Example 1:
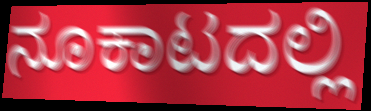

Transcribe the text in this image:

ನೂಕಾಟದಲ್ಲಿ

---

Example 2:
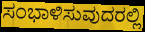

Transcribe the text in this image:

ಸಂಭಾಳಿಸುವುದರಲ್ಲಿ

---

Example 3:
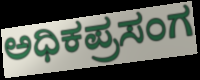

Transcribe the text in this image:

ಅಧಿಕಪ್ರಸಂಗ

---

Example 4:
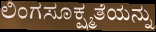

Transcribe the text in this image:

ಲಿಂಗಸೂಕ್ಷ್ಮತೆಯನ್ನು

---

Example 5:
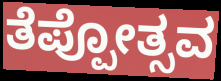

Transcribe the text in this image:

ತೆಪ್ಪೋತ್ಸವ